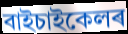
বাইচাইকেলৰ